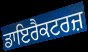
ਡਾਇਰੈਕਟਰਜ਼